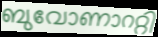
ബുവോണാററ്റി